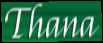
Thana